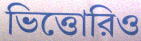
ভিত্তোরিও